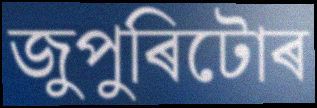
জুপুৰিটোৰ